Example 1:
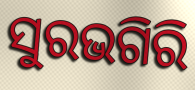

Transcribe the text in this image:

ସୁରଭଗିରି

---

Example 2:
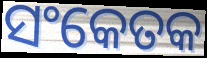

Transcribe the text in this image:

ସଂକେତକ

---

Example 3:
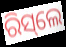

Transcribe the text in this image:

ରିସ୍‌ଲେ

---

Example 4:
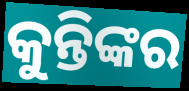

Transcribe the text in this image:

କୁନ୍ତିଙ୍କର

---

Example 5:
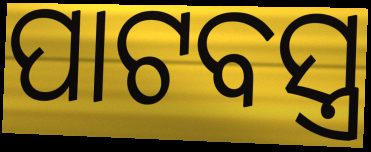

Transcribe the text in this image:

ପାଟବସ୍ତ୍ର